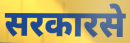
सरकारसे